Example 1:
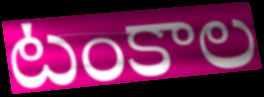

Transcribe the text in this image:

టంకాల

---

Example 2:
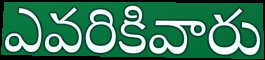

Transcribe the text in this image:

ఎవరికివారు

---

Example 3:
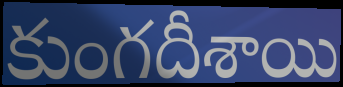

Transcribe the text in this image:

కుంగదీశాయి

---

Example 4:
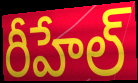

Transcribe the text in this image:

రీహేల్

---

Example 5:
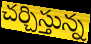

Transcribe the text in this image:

చర్చిస్తున్న